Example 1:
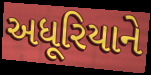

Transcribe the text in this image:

અધૂરિયાને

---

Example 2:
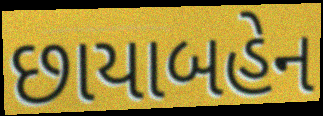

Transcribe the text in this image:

છાયાબહેન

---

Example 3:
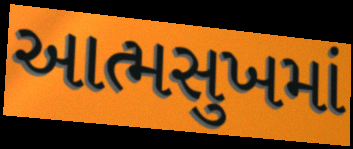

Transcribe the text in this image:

આત્મસુખમાં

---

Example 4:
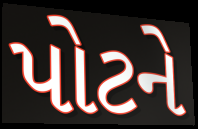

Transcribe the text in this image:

પોટને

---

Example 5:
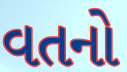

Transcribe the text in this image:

વતનો